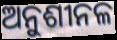
ଅନୁଶୀନଳ